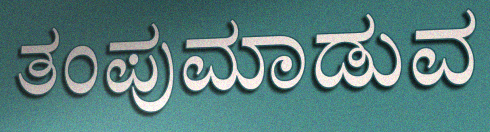
ತಂಪುಮಾಡುವ